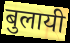
बुलायी